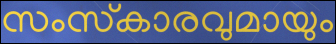
സംസ്‌കാരവുമായും